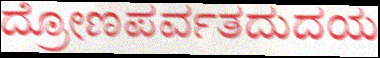
ದ್ರೋಣಪರ್ವತದುದಯ